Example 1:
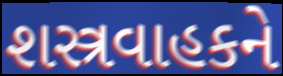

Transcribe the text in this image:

શસ્ત્રવાહકને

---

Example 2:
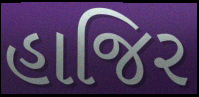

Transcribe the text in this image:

હાજિર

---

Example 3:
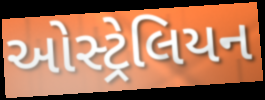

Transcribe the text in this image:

ઓસ્ટ્રેલિયન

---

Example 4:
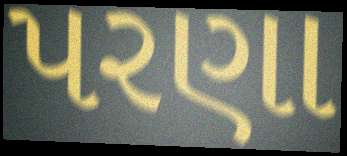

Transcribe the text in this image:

પરણા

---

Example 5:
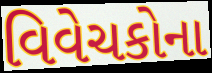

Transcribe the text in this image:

વિવેચકોના